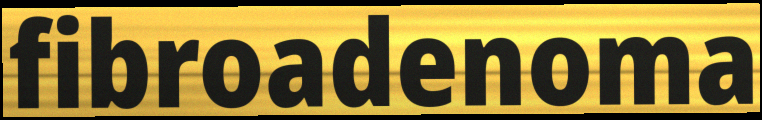
fibroadenoma